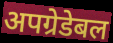
अपग्रेडेबल